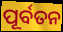
ପୂର୍ବତନ